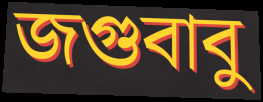
জগুবাবু